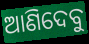
ଆଣିଦେବୁ